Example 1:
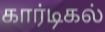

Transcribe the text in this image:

கார்டிகல்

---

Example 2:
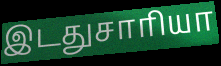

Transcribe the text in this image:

இடதுசாரியா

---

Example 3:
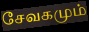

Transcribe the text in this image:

சேவகமும்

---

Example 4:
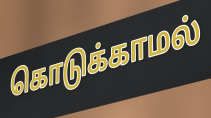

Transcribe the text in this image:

கொடுக்காமல்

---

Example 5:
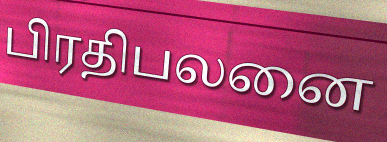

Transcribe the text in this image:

பிரதிபலனை